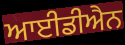
ਆਈਡੀਐਨ